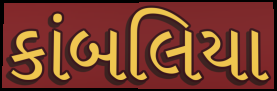
કાંબલિયા